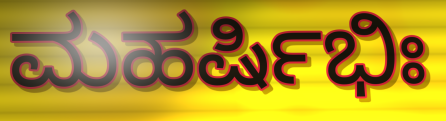
ಮಹರ್ಷಿಭಿಃ